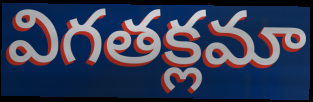
విగతక్లమా